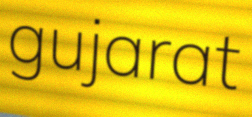
gujarat